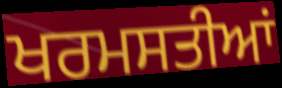
ਖਰਮਸਤੀਆਂ